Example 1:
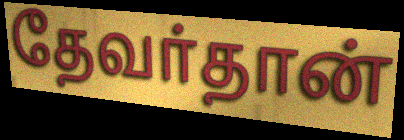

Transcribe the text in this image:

தேவர்தான்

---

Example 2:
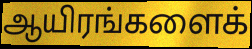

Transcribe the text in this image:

ஆயிரங்களைக்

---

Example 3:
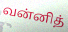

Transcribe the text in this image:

வன்னித்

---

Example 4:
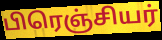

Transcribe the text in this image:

பிரெஞ்சியர்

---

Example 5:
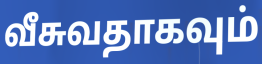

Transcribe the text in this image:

வீசுவதாகவும்